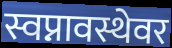
स्वप्नावस्थेवर